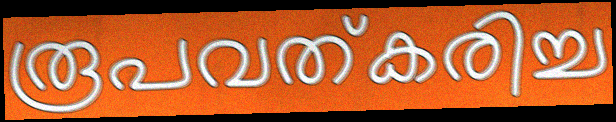
രൂപവത്കരിച്ച